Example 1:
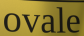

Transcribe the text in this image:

ovale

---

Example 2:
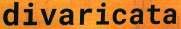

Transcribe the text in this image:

divaricata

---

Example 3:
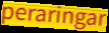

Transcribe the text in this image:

peraringar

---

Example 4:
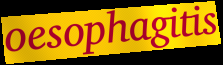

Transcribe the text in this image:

oesophagitis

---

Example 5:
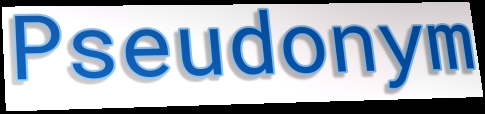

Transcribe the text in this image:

Pseudonym